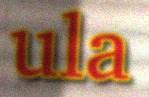
ula